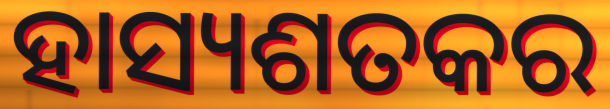
ହାସ୍ୟଶତକର